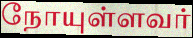
நோயுள்ளவர்